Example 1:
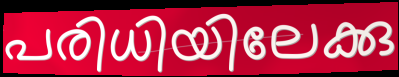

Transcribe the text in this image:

പരിധിയിലേക്കു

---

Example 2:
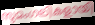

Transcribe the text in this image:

സുമംഗലികളായി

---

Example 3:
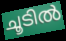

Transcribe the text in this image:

ചൂടിൽ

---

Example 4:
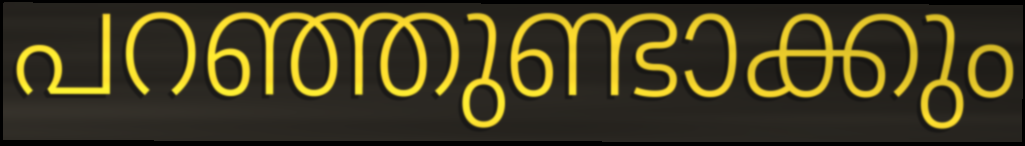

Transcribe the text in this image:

പറഞ്ഞുണ്ടാക്കും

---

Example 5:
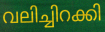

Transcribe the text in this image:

വലിച്ചിറക്കി